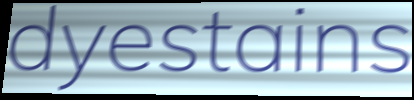
dyestains